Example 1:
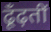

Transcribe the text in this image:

ढूँढ़तीं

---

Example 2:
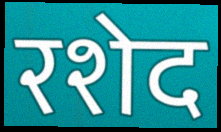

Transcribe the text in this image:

रशेद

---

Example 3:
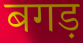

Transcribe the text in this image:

बगड़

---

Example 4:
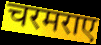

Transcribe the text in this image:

चरमराए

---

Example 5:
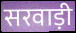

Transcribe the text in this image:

सरवाड़ी